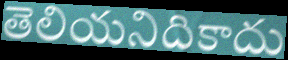
తెలియనిదికాదు